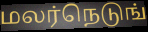
மலர்நெடுங்